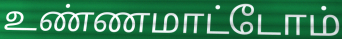
உண்ணமாட்டோம்